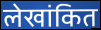
लेखांकित